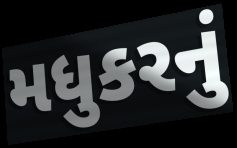
મધુકરનું